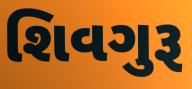
શિવગુરૂ